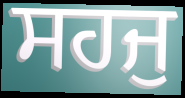
ਸਹਜੁ